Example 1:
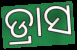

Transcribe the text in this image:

ଡ୍ରାସ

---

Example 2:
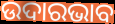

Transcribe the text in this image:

ଉଦାରଭାବ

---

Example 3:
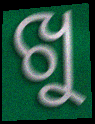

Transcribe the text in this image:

ଖୁ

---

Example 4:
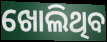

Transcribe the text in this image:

ଖୋଲିଥିବ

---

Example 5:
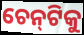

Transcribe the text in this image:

ଚେନ୍‌ଟିକୁ